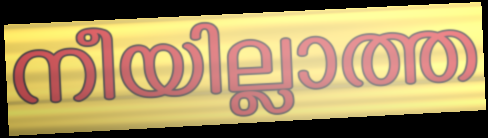
നീയില്ലാത്ത